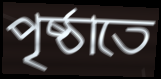
পৃষ্ঠাতে